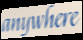
anywhere